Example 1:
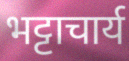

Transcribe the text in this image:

भट्टाचार्य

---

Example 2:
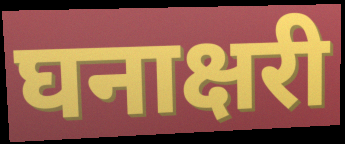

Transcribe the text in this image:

घनाक्षरी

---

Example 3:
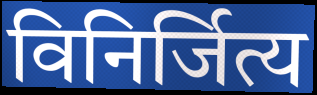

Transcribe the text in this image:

विनिर्जित्य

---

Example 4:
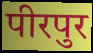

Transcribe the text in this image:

पीरपुर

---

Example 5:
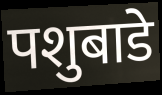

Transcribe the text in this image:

पशुबाडे